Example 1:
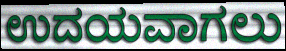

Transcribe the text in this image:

ಉದಯವಾಗಲು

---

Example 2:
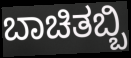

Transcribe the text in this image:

ಬಾಚಿತಬ್ಬಿ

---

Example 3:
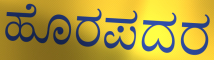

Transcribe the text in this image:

ಹೊರಪದರ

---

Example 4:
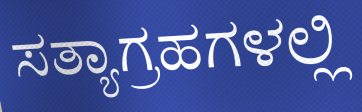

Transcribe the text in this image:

ಸತ್ಯಾಗ್ರಹಗಳಲ್ಲಿ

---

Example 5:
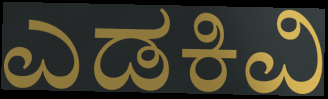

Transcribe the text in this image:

ಎಡಕಿವಿ